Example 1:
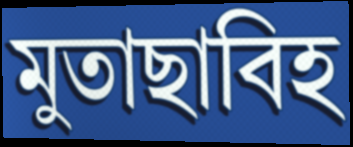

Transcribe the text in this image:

মুতাছাবিহ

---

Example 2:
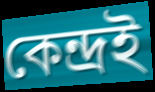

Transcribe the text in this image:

কেন্দ্ৰই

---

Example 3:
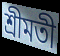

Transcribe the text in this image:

শ্ৰীমতী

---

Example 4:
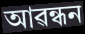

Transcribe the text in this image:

আৱন্ধন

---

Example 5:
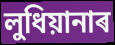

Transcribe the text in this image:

লুধিয়ানাৰ